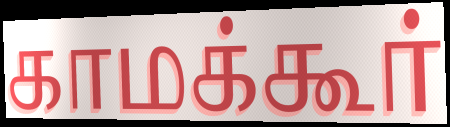
காமக்கூர்